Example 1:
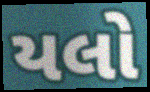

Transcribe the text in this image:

યલો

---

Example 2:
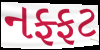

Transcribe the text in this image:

નફ્ફટ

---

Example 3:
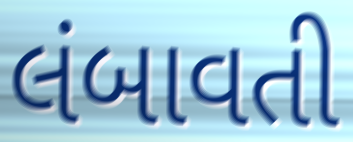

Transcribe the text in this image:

લંબાવતી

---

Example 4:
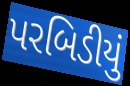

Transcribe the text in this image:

પરબિડીયું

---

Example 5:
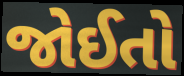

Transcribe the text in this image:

જોઈતો